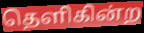
தெளிகின்ற